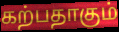
கற்பதாகும்